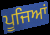
ਪੂਜਿਆਂ